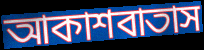
আকাশবাতাস